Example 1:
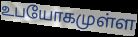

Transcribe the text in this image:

உபயோகமுள்ள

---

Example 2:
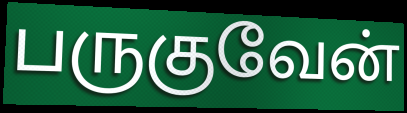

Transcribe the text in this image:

பருகுவேன்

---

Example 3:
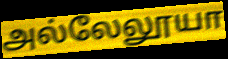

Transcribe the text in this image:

அல்லேலூயா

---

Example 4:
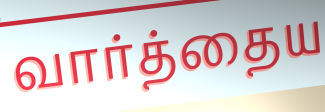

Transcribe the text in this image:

வார்த்தைய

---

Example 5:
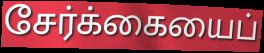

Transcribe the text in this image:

சேர்க்கையைப்